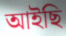
আইছি